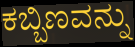
ಕಬ್ಬಿಣವನ್ನು